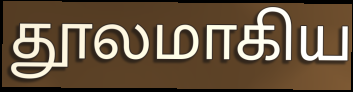
தூலமாகிய